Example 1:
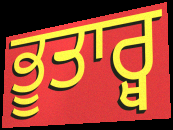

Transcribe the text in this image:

ਭੂਤਾਰ੍ਥ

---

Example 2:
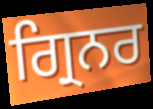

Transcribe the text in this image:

ਗ੍ਰਿਨਰ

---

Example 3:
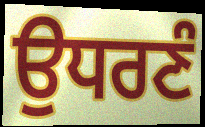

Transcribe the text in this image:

ਉਧਰਣੰ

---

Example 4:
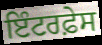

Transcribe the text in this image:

ਇੰਟਰਫ਼ੇਸ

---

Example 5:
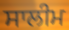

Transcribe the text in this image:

ਸਾਲੀਮ